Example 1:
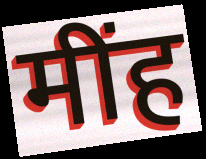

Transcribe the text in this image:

मींह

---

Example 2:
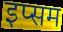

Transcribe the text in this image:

इप्सम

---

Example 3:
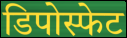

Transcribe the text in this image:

डिपोस्फेट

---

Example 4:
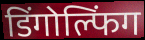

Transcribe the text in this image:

डिंगोल्फिंग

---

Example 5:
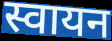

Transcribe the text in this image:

स्वायन